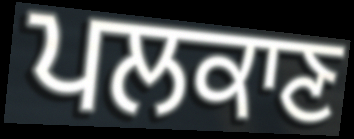
ਪਲਕਾਣ